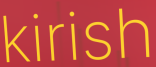
kirish